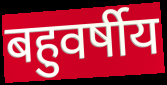
बहुवर्षीय